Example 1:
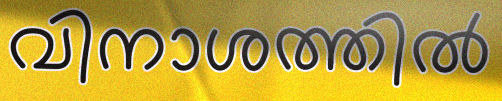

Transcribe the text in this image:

വിനാശത്തിൽ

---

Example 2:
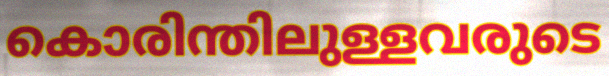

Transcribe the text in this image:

കൊരിന്തിലുള്ളവരുടെ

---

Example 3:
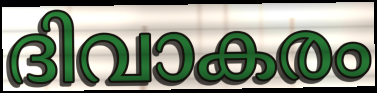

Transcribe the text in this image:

ദിവാകരം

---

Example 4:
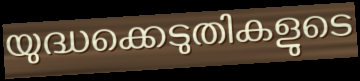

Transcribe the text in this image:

യുദ്ധക്കെടുതികളുടെ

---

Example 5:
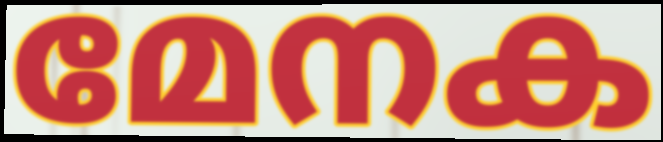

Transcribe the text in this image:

മേനക